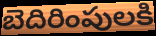
బెదిరింపులకి